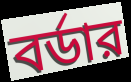
বর্ডার